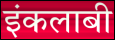
इंकलाबी